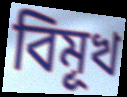
বিমূখ